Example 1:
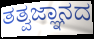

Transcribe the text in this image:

ತತ್ವಜ್ಞಾನದ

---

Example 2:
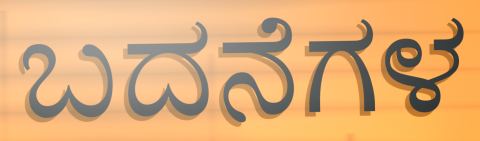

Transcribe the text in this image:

ಬದನೆಗಳ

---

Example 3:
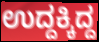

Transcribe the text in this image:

ಉದ್ದಕ್ಕಿದ್ದ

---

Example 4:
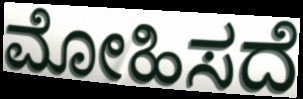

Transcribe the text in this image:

ಮೋಹಿಸದೆ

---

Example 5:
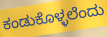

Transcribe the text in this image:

ಕಂಡುಕೊಳ್ಳಲೆಂದು